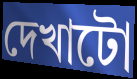
দেখাটো